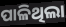
ପାଳିଥିଲା